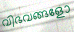
വിഭവങ്ങളോ